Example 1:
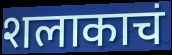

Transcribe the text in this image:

शलाकाचं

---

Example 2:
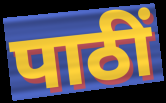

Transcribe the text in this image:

पाठीं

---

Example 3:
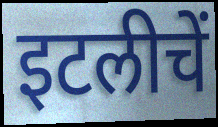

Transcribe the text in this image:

इटलीचें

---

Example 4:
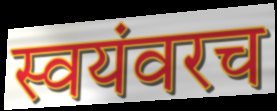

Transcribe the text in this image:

स्वयंवरच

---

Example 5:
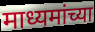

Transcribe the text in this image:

माध्यमांच्या